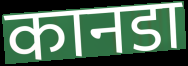
कानडा